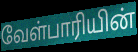
வேள்பாரியின்